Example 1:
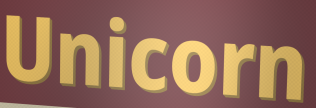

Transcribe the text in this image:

Unicorn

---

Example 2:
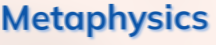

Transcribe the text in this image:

Metaphysics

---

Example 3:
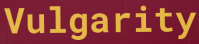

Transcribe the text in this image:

Vulgarity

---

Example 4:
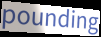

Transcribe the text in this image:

pounding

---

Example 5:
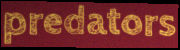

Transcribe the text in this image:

predators